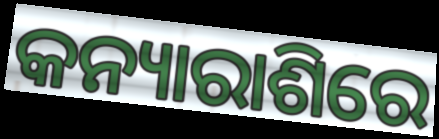
କନ୍ୟାରାଶିରେ